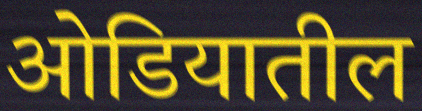
ओडियातील